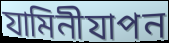
যামিনীযাপন